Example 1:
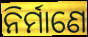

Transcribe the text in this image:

ନିର୍ମାଣେ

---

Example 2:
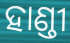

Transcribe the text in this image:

ହାଣ୍ଡୀ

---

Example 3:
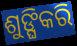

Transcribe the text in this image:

ଶୁଙ୍ଘିକରି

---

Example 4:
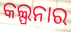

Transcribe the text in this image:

କଲ୍ପନାର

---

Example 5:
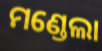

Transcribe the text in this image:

ମଣ୍ଡେଲା